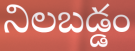
నిలబడ్డం